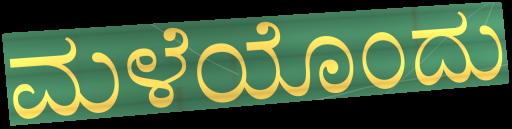
ಮಳೆಯೊಂದು